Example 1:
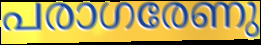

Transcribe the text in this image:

പരാഗരേണു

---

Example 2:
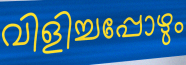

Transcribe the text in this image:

വിളിച്ചപ്പോഴും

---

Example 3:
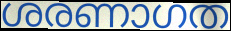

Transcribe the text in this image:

ശരണാഗത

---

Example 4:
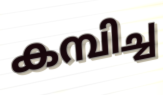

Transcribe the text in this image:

കമ്പിച്ച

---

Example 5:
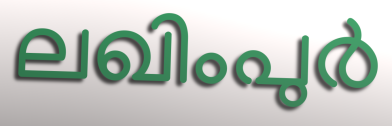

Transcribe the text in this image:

ലഖിംപുർ